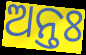
ଅନ୍ତଃ